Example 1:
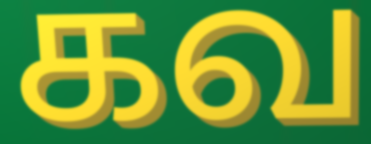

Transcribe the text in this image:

கவ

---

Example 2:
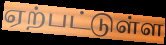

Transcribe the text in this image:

ஏற்பட்டுள்ள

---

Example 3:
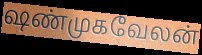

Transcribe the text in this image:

ஷண்முகவேலன்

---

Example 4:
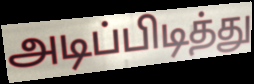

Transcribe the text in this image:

அடிப்பிடித்து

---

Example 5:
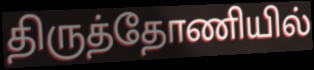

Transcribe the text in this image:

திருத்தோணியில்